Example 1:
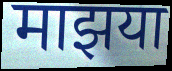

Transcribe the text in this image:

माझया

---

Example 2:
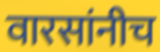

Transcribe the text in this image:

वारसांनीच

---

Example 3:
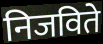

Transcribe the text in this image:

निजविते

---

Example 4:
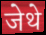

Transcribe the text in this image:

जेथे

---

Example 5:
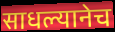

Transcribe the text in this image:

साधल्यानेच